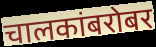
चालकांबरोबर